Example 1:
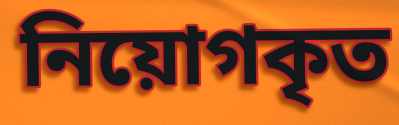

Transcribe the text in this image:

নিয়োগকৃত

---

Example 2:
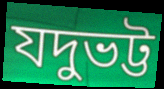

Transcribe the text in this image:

যদুভট্ট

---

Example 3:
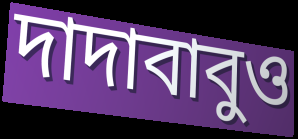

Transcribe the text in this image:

দাদাবাবুও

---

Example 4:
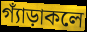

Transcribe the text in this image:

গ্যাঁড়াকলে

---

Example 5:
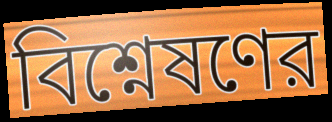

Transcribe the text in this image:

বিশ্নেষণের